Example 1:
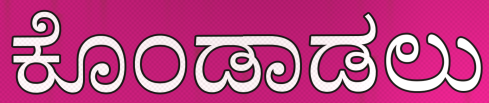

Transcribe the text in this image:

ಕೊಂಡಾಡಲು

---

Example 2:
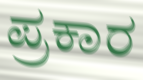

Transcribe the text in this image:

ಪ್ರಕಾರ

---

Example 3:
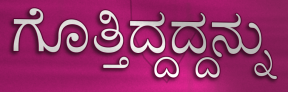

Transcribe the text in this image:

ಗೊತ್ತಿದ್ದದ್ದನ್ನು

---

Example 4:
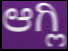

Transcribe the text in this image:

ಆಗ್ಲಿ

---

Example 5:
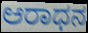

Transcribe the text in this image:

ಆರಾಧನ